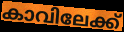
കാവിലേക്ക്